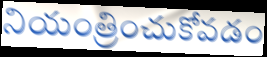
నియంత్రించుకోవడం